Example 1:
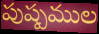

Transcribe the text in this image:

పుష్పముల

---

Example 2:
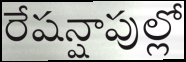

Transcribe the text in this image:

రేషన్షాపుల్లో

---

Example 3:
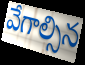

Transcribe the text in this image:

వేగాల్సిన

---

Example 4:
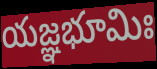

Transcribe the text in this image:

యజ్ఞభూమిః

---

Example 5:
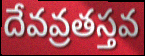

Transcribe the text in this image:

దేవవ్రతస్తవ